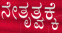
ನೇತೃತ್ವಕ್ಕೆ